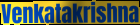
Venkatakrishna